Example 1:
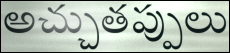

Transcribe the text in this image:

అచ్చుతప్పులు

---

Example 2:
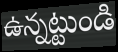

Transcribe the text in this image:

ఉన్నట్టుండి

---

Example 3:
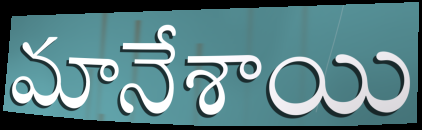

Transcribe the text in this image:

మానేశాయి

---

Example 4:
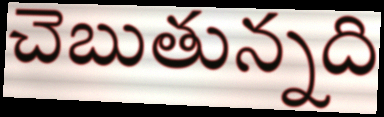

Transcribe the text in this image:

చెబుతున్నది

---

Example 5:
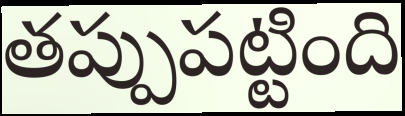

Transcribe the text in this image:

తప్పుపట్టింది